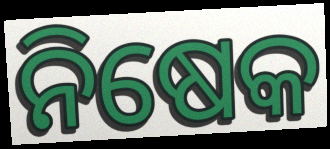
ନିଷେକ